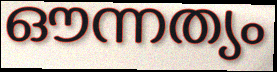
ഔന്നത്യം